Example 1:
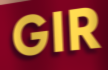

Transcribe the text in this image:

GIR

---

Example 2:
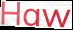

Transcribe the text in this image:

Haw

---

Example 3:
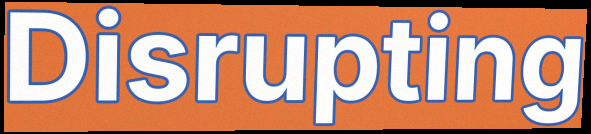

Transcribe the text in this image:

Disrupting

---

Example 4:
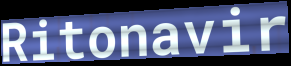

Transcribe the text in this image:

Ritonavir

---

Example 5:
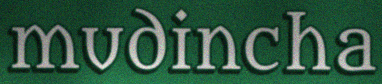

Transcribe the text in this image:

mudincha